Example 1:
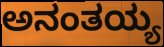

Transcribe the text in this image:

ಅನಂತಯ್ಯ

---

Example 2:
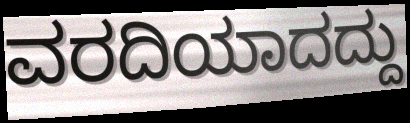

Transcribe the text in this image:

ವರದಿಯಾದದ್ದು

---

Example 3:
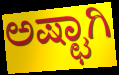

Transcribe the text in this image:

ಅಷ್ಟಾಗಿ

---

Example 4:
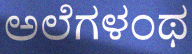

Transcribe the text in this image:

ಅಲೆಗಳಂಥ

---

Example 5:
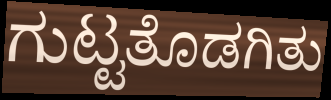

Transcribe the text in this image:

ಗುಟ್ಟತೊಡಗಿತು